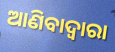
ଆଣିବାଦ୍ୱାରା